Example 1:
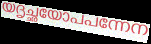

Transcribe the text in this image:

യദൃച്ഛയോപപന്നേന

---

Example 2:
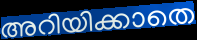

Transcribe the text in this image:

അറിയിക്കാതെ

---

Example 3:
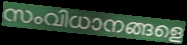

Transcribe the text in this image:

സംവിധാനങ്ങളെ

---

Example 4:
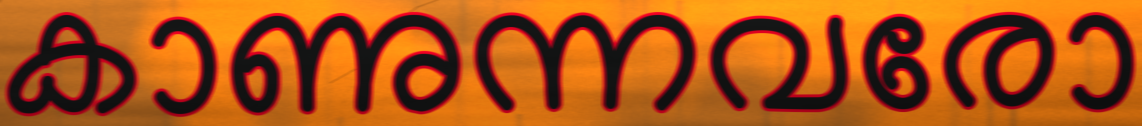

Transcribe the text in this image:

കാണുന്നവരോ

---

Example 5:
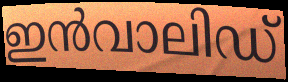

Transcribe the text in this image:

ഇൻവാലിഡ്